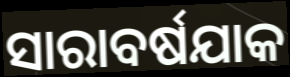
ସାରାବର୍ଷଯାକ